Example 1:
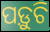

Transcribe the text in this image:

ପଡ଼ୁଚି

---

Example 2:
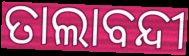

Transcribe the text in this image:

ତାଲାବନ୍ଦୀ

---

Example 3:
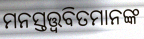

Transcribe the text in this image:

ମନସ୍ତତ୍ତ୍ୱବିତମାନଙ୍କ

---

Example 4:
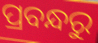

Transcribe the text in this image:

ପ୍ରବନ୍ଧରୁ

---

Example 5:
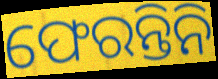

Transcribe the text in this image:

ଫେରନ୍ତିନି